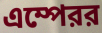
এম্পেরর